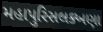
મહાપુરિસલક્ખણા